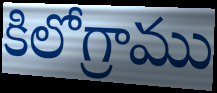
కిలోగ్రాము